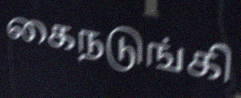
கைநடுங்கி